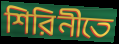
শিরিনীতে